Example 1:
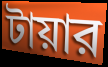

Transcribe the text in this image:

টায়ার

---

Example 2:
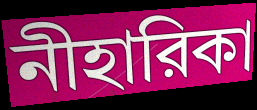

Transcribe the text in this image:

নীহারিকা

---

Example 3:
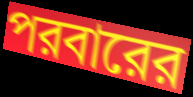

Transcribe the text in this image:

পরবারের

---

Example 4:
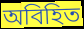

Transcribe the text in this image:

অবিহিত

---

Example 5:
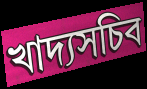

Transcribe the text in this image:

খাদ্যসচিব